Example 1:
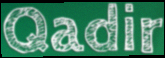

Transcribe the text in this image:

Qadir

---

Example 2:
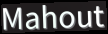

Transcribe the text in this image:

Mahout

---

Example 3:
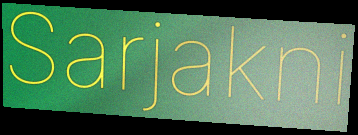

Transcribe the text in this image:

Sarjakni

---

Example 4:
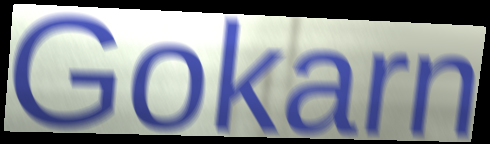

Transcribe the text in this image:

Gokarn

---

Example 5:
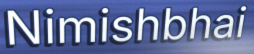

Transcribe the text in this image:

Nimishbhai